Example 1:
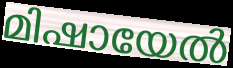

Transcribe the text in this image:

മിഷായേൽ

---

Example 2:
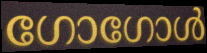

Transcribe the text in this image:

ഗോഗോൾ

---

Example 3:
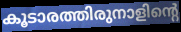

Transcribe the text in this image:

കൂടാരത്തിരുനാളിന്റെ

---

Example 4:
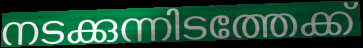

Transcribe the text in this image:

നടക്കുന്നിടത്തേക്ക്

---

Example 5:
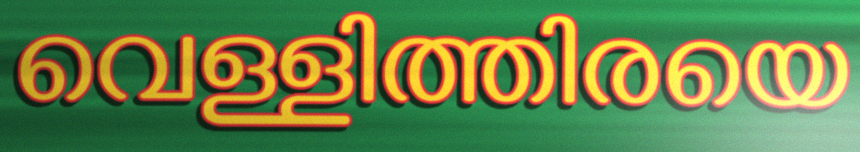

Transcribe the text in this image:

വെള്ളിത്തിരയെ